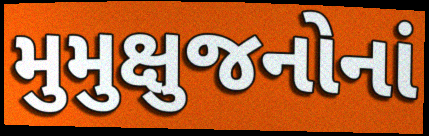
મુમુક્ષુજનોનાં